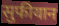
सुफीयान